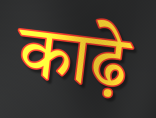
काढ़े